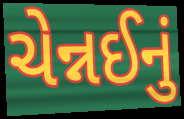
ચેન્નઈનું